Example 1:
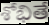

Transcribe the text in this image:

శోభితే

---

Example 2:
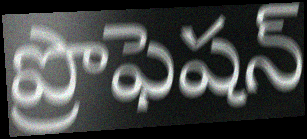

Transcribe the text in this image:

ప్రొఫెషన్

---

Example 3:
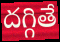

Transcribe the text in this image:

దగ్గితే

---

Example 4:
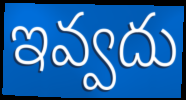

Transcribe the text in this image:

ఇవ్వదు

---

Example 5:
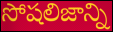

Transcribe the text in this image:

సోషలిజాన్ని